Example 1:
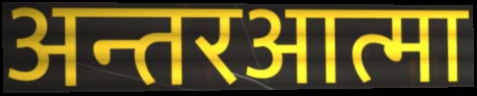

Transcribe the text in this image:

अन्तरआत्मा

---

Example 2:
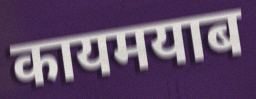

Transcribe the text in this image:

कायमयाब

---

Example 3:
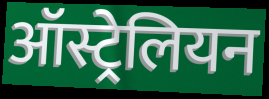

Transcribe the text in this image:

ऑस्ट्रेलियन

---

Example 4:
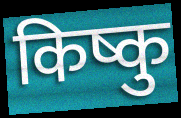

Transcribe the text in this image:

किष्कु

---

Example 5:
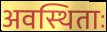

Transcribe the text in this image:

अवस्थिताः